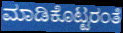
ಮಾಡಿಕೊಟ್ಟರಂತೆ